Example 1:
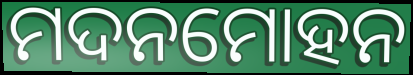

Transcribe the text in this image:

ମଦନମୋହନ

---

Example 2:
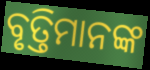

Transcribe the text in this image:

ବୃତ୍ତିମାନଙ୍କ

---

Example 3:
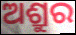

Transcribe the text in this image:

ଅଶ୍ରୁର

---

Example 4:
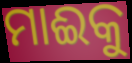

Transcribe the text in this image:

ମାଈକୁ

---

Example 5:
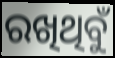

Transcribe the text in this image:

ରଖିଥିବୁଁ